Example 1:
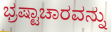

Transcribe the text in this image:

ಭ್ರಷ್ಟಾಚಾರವನ್ನು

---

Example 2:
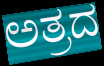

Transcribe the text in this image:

ಅತ್ರದ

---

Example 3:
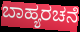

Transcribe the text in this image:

ಬಾಹ್ಯರಚನೆ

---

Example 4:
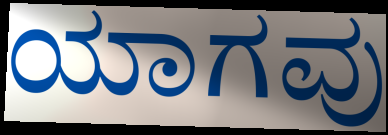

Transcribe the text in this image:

ಯಾಗವು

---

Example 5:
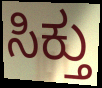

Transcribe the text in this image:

ಸಿಕ್ತು